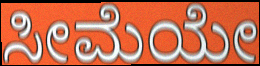
ಸೀಮೆಯೇ